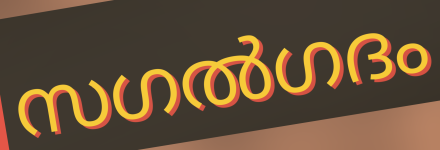
സഗൽഗദം